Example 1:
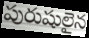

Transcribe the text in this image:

పురుషులైన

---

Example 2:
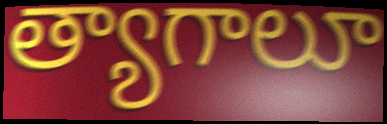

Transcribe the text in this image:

త్యాగాలూ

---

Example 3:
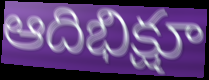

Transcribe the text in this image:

ఆదిభిక్షూ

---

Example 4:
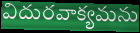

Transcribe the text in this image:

విదురవాక్యమను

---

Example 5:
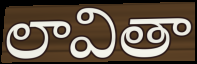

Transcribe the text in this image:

లావితా